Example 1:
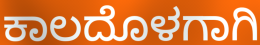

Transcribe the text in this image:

ಕಾಲದೊಳಗಾಗಿ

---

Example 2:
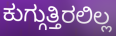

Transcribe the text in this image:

ಕುಗ್ಗುತ್ತಿರಲಿಲ್ಲ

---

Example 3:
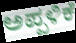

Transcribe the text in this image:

ಅಪ್ಪಳಿಕೆ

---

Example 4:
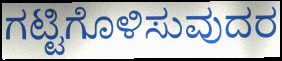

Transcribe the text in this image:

ಗಟ್ಟಿಗೊಳಿಸುವುದರ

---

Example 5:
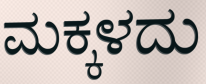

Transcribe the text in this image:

ಮಕ್ಕಳದು